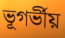
ভূগর্ভীয়